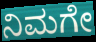
ನಿಮಗೇ